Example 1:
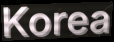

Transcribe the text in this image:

Korea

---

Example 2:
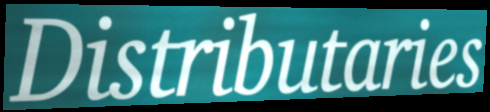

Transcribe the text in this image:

Distributaries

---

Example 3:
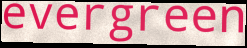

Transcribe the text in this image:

evergreen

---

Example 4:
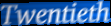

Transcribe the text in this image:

Twentieth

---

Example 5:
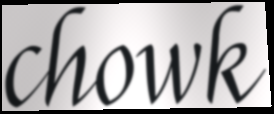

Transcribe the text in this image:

chowk